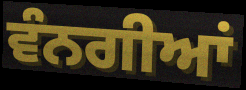
ਵੰਨਗੀਆਂ